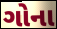
ગોના